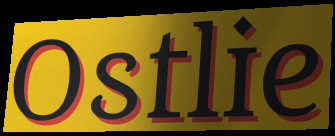
Ostlie